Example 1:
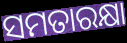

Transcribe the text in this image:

ସମତାରକ୍ଷା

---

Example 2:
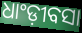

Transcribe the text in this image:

ଧାଂଡ଼ୀବସା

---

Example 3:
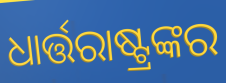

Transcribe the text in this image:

ଧାର୍ତ୍ତରାଷ୍ଟ୍ରଙ୍କର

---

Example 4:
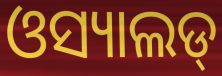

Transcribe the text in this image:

ଓସ୍ୟାଲଡ୍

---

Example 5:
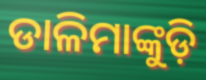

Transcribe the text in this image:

ଡାଳିମାଙ୍କୁଡ଼ି